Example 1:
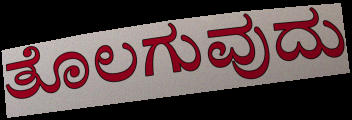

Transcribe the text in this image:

ತೊಲಗುವುದು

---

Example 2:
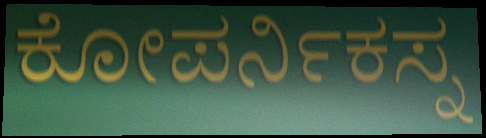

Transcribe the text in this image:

ಕೋಪರ್ನಿಕಸ್ನ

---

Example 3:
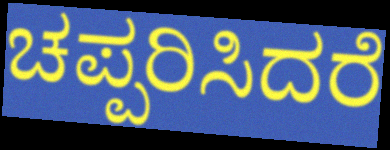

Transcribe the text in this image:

ಚಪ್ಪರಿಸಿದರೆ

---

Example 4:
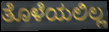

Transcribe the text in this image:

ತೊಳೆಯಲಿಲ್ಲ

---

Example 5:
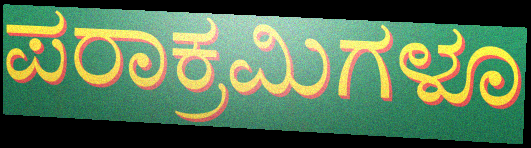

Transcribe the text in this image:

ಪರಾಕ್ರಮಿಗಳೂ